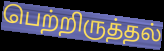
பெற்றிருத்தல்